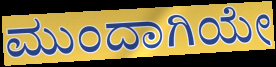
ಮುಂದಾಗಿಯೇ